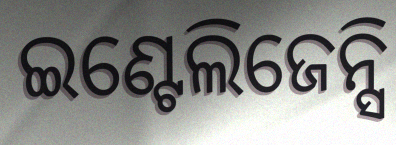
ଇଣ୍ଟେଲିଜେନ୍ସି